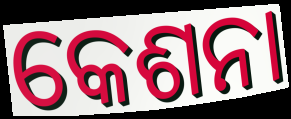
କେଶନା